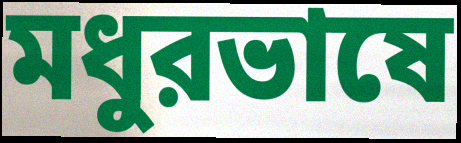
মধুরভাষে